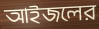
আইজলের